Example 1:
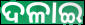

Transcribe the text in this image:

ଦଳାଇ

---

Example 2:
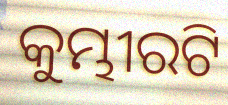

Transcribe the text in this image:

କୁମ୍ଭୀରଟି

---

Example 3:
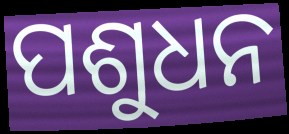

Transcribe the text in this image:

ପଶୁଧନ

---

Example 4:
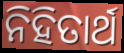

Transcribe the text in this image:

ନିହିତାର୍ଥ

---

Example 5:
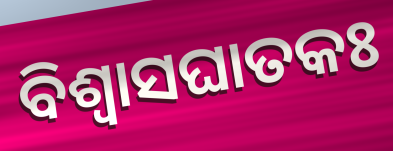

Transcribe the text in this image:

ବିଶ୍ୱାସଘାତକଃ